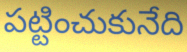
పట్టించుకునేది